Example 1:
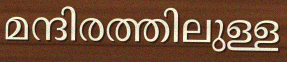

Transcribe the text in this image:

മന്ദിരത്തിലുള്ള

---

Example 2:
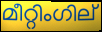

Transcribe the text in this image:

മീറ്റിംഗില്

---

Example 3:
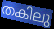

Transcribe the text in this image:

തകിലു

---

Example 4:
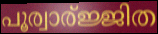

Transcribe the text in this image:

പൂര്വാര്ജ്ജിത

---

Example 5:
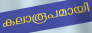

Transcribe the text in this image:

കലാരൂപമായി